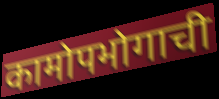
कामोपभोगाची